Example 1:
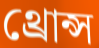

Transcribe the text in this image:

থ্রোন্স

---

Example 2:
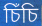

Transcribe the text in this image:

চিঁচি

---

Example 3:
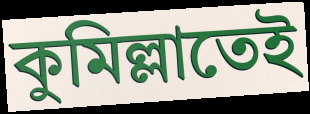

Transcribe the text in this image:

কুমিল্লাতেই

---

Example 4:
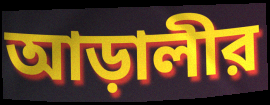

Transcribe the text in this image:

আড়ালীর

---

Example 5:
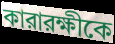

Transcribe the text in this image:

কারারক্ষীকে